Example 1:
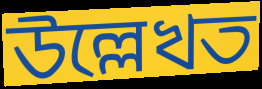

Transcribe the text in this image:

উল্লেখত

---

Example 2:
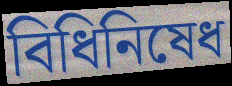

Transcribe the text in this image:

বিধিনিষেধ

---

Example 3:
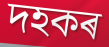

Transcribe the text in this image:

দহকৰ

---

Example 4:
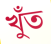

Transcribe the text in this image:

খুঁত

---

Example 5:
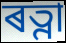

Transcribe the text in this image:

ৰত্না